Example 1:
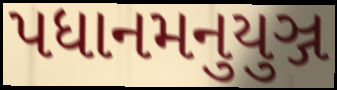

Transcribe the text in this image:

પધાનમનુયુઞ્જ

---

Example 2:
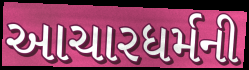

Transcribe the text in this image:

આચારધર્મની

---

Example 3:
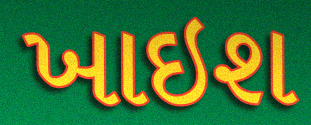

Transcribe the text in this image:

ખાઇશ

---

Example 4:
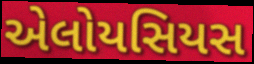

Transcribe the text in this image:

એલોયસિયસ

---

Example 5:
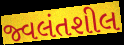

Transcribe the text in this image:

જ્વલંતશીલ